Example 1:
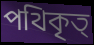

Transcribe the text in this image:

পথিকৃত্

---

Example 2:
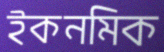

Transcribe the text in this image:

ইকনমিক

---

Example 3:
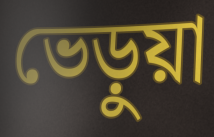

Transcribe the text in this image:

ভেড়ুয়া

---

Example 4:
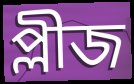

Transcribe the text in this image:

প্লীজ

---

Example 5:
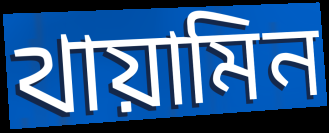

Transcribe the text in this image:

থায়ামিন